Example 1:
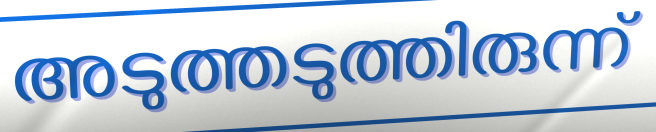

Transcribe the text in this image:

അടുത്തടുത്തിരുന്ന്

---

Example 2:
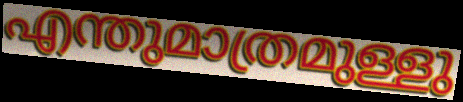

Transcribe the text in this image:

എന്തുമാത്രമുള്ളു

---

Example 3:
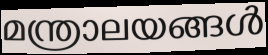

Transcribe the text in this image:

മന്ത്രാലയങ്ങൾ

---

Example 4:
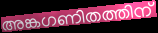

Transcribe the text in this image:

അങ്കഗണിതത്തിന്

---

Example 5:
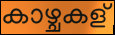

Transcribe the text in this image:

കാഴ്ചകള്